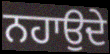
ਨਹਾਉਦੇ